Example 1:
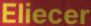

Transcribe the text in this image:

Eliecer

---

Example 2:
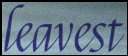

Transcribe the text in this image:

leavest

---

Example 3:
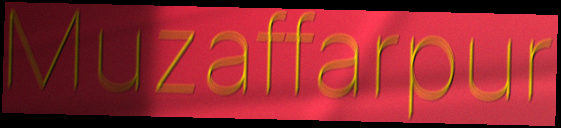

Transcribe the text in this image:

Muzaffarpur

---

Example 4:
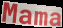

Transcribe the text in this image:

Mama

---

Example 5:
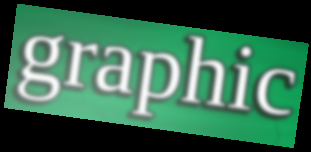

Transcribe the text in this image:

graphic